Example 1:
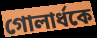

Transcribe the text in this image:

গোলার্ধকে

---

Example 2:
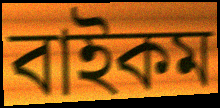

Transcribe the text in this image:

বাইকম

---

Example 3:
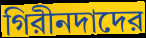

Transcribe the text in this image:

গিরীনদাদের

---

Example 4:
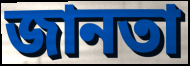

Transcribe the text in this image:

জানতা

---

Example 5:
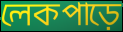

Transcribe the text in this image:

লেকপাড়ে